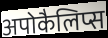
अपोकैलिप्स